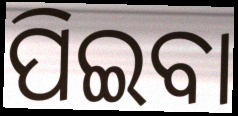
ପିଇବା